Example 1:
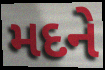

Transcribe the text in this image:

મદને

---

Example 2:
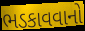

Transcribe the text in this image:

ભડકાવવાનો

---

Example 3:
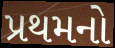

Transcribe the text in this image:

પ્રથમનો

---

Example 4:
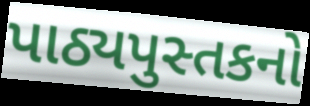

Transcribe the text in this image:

પાઠ્યપુસ્તકનો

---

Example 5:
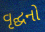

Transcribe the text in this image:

વૃદ્ઘનો